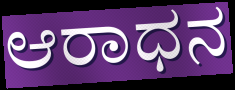
ಆರಾಧನ